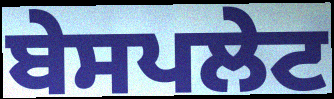
ਬੇਸਪਲੇਟ